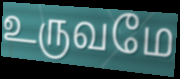
உருவமே